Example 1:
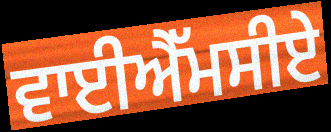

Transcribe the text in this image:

ਵਾਈਐੱਮਸੀਏ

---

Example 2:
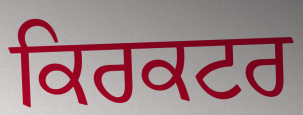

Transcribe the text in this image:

ਕਿਰਕਟਰ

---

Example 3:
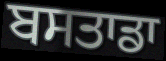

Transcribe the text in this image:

ਬਸਤਾਡਾ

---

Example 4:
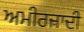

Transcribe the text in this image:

ਅਮੀਰਜ਼ਾਦੀ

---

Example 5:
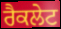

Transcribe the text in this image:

ਰੈਕਲੇਟ